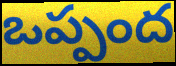
ఒప్పంద